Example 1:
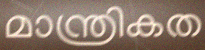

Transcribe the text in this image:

മാന്ത്രികത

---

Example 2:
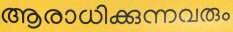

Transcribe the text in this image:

ആരാധിക്കുന്നവരും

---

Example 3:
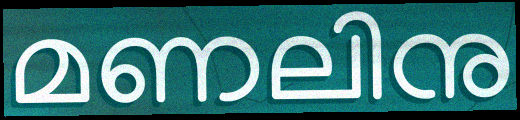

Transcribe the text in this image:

മണലിനു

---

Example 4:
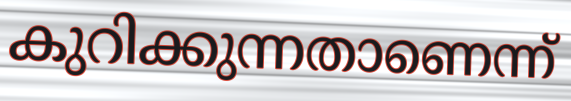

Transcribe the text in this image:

കുറിക്കുന്നതാണെന്ന്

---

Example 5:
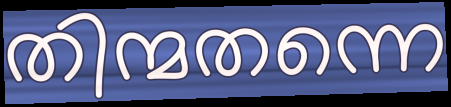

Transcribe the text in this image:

തിന്മതന്നെ